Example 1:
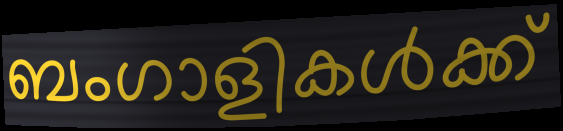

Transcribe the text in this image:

ബംഗാളികൾക്ക്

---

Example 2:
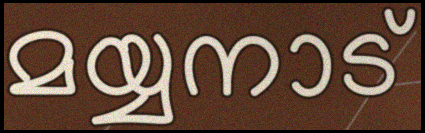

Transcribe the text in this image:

മയ്യനാട്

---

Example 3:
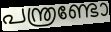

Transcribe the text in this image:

പന്ത്രണ്ടോ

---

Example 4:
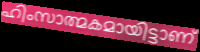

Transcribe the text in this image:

ഹിംസാത്മകമായിട്ടാണ്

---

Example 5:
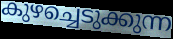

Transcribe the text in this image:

കുഴച്ചെടുക്കുന്ന